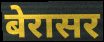
बेरासर